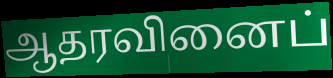
ஆதரவினைப்